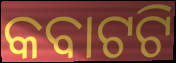
କବାଟଟି